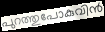
പുറത്തുപോകുവിൻ